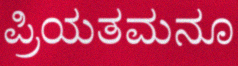
ಪ್ರಿಯತಮನೂ